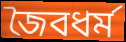
জৈবধর্ম